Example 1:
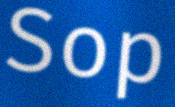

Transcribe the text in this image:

Sop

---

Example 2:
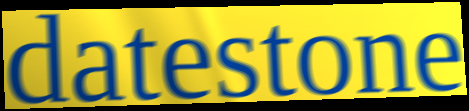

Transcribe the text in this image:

datestone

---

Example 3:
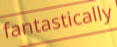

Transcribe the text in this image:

fantastically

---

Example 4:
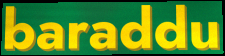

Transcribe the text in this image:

baraddu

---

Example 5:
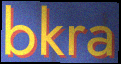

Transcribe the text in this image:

bkra